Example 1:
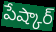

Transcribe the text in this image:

పేష్కార్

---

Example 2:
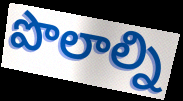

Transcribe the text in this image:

పొలాల్ని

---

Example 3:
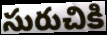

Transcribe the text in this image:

సురుచికి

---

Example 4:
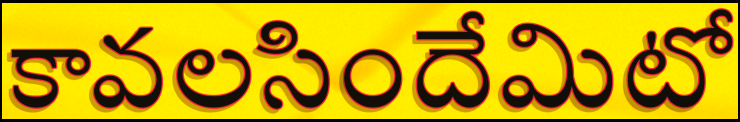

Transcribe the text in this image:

కావలసిందేమిటో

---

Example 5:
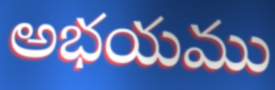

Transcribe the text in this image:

అభయము